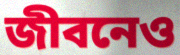
জীবনেও